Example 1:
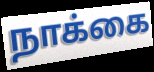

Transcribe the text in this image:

நாக்கை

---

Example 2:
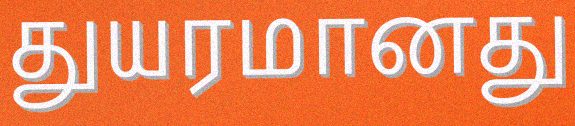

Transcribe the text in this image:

துயரமானது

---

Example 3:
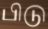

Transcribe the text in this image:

பிடு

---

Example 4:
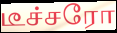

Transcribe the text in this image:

டீச்சரோ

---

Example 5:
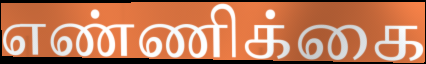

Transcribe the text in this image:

எண்ணிக்கை